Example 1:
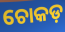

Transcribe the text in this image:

ଚୋକଡ଼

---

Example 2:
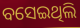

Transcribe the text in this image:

ବସେଇଥିଲି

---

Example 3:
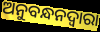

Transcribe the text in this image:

ଅନୁବନ୍ଧନଦ୍ୱାରା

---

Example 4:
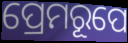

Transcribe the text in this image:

ପ୍ରେମରୂପେ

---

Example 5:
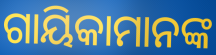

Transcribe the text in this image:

ଗାୟିକାମାନଙ୍କ